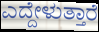
ಎದ್ದೇಳುತ್ತಾರೆ